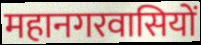
महानगरवासियों